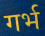
गर्भ